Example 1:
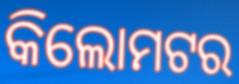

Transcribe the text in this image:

କିଲୋମଟର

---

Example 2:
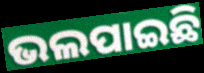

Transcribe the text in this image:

ଭଲପାଇଛି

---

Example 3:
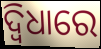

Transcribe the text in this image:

ଦ୍ଵିଧାରେ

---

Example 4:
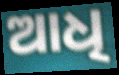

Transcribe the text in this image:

ଆଧି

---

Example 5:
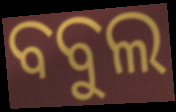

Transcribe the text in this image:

ବବୁଲ